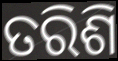
ତରିଶି